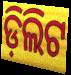
ଡ଼ିଲିଟ